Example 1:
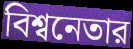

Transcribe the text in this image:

বিশ্বনেতার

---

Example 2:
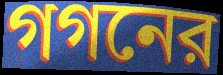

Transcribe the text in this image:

গগনের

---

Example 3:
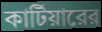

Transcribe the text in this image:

কার্টিয়ারের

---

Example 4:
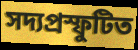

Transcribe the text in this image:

সদ্যপ্রস্ফুটিত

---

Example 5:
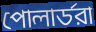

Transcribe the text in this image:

পোলার্ডরা